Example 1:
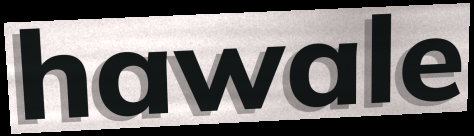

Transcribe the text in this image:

hawale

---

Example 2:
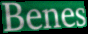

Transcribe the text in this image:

Benes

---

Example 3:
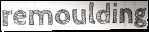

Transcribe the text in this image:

remoulding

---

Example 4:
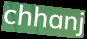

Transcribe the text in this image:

chhanj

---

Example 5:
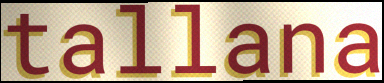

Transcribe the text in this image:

tallana